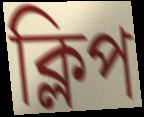
ক্লিপ